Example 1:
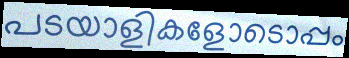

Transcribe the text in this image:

പടയാളികളോടൊപ്പം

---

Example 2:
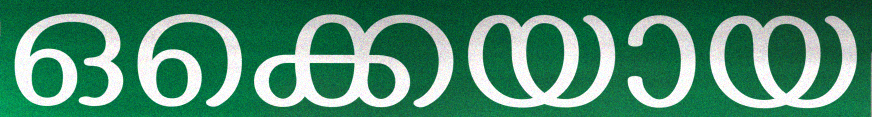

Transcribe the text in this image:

ഒക്കെയായ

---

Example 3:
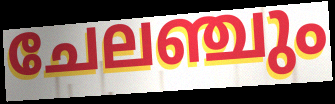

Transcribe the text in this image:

ചേലഞ്ചും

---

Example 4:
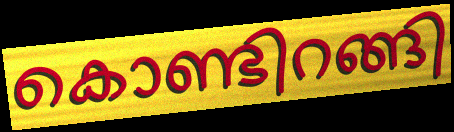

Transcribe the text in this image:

കൊണ്ടിറങ്ങി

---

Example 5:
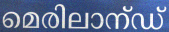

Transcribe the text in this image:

മെരിലാന്ഡ്